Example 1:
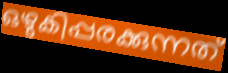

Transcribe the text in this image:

ഒഴുകിപ്പരക്കുന്നത്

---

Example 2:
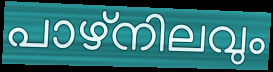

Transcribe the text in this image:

പാഴ്നിലവും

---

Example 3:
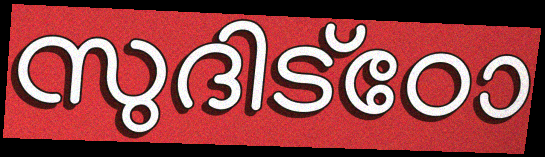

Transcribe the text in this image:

സുദിട്ഠോ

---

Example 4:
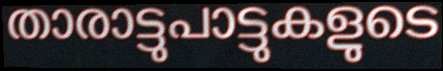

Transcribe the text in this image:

താരാട്ടുപാട്ടുകളുടെ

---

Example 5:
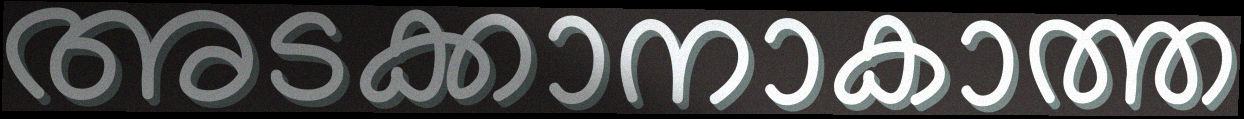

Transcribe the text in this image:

അടക്കാനാകാത്ത